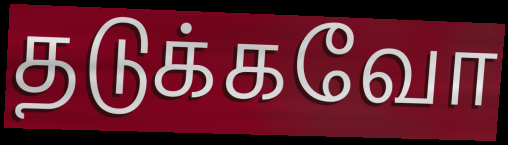
தடுக்கவோ